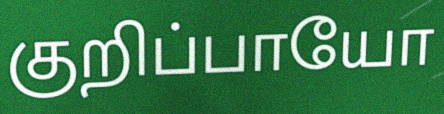
குறிப்பாயோ